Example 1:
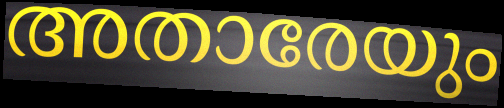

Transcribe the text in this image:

അതാരേയും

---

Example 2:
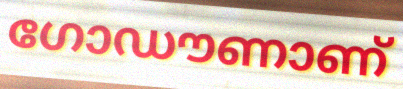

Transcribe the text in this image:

ഗോഡൗണാണ്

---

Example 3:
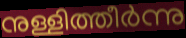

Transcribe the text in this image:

നുള്ളിത്തീർന്നു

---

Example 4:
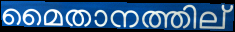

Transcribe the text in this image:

മൈതാനത്തില്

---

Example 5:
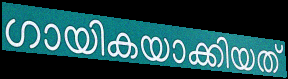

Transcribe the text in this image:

ഗായികയാക്കിയത്